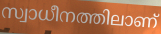
സ്വാധീനത്തിലാണ്